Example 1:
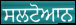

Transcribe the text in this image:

ਸਲਟੋਆਨ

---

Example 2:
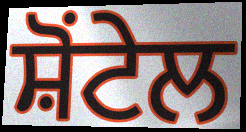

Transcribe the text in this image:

ਸ਼ੋਂਟੇਲ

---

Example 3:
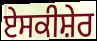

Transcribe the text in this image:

ਏਸਕੀਸ਼ੇਰ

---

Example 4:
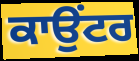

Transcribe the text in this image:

ਕਾਉਂਟਰ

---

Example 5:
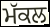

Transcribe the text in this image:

ਮੱਕਲ